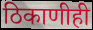
ठिकाणीही